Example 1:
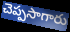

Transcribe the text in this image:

చెప్పసాగారు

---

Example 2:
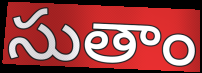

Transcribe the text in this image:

సుతాం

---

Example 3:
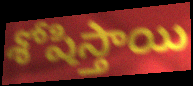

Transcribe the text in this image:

శోషిస్తాయి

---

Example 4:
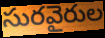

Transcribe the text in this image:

సురవైరుల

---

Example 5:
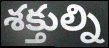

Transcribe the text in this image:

శక్తుల్ని